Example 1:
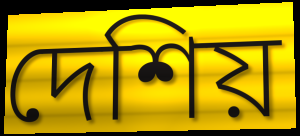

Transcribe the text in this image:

দেশিয়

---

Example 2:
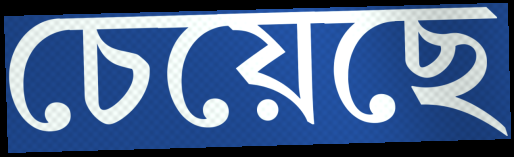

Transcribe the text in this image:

চেয়েছে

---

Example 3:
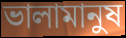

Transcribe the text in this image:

ভালামানুষ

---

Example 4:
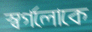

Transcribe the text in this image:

স্বর্গলোকে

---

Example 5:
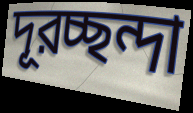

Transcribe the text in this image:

দূরচ্ছন্দা